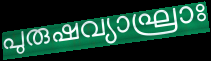
പുരുഷവ്യാഘ്രാഃ